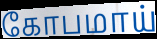
கோபமாய்